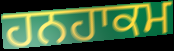
ਹਨਹਾਕਮ